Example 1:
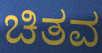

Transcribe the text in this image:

ಚಿತವ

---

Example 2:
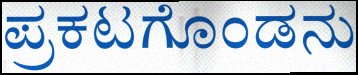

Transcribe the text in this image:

ಪ್ರಕಟಗೊಂಡನು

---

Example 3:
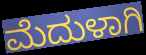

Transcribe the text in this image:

ಮೆದುಳಾಗಿ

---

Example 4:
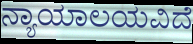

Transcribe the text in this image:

ನ್ಯಾಯಾಲಯವಿದೆ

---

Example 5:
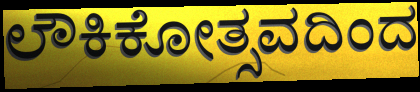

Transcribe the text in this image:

ಲೌಕಿಕೋತ್ಸವದಿಂದ